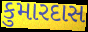
કુમારદાસ